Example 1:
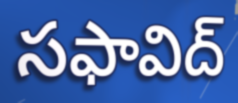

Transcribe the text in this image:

సఫావిద్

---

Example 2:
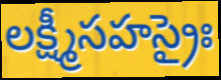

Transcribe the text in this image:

లక్ష్మీసహస్రైః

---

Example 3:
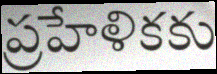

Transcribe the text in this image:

ప్రహేళికకు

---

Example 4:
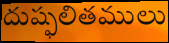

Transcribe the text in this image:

దుష్ఫలితములు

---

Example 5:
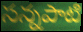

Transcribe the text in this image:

సన్నపాటి